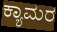
ಕ್ಯಾಮರ